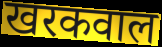
खरकवाल